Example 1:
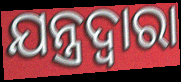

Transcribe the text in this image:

ଯନ୍ତ୍ରଦ୍ବାରା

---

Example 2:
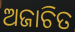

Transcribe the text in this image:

ଅଜାଚିତ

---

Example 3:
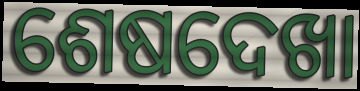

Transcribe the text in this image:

ଶେଷଦେଖା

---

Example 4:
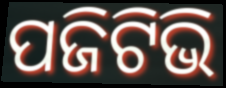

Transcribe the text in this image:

ପଜିଟିଭି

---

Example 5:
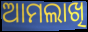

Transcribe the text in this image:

ଆମଲାଖି